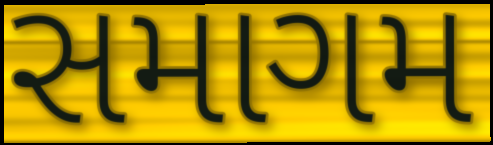
સમાગમ